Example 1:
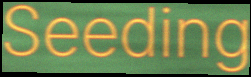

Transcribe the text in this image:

Seeding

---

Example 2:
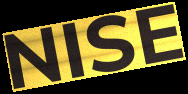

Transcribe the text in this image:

NISE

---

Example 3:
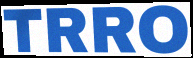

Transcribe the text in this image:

TRRO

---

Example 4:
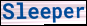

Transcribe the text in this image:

Sleeper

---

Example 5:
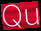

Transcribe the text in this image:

Qu